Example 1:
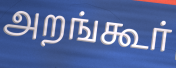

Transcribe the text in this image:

அறங்கூர்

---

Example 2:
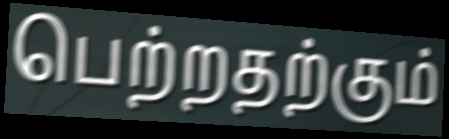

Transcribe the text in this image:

பெற்றதற்கும்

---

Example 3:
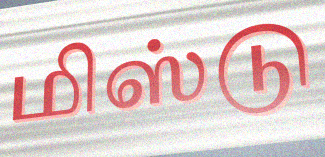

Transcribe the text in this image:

மிஸ்டு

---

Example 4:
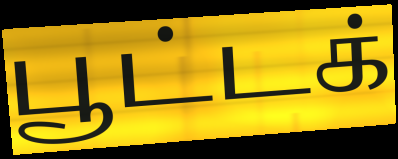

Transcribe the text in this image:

பூட்டக்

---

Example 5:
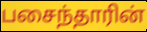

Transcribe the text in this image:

பசைந்தாரின்